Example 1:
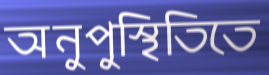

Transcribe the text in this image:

অনুপুস্থিতিতে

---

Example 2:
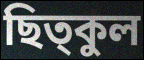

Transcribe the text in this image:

ছিত্কুল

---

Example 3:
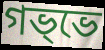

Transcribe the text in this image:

গভ্ভে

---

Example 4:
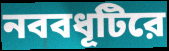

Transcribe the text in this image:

নববধূটিরে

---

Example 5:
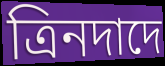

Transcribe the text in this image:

ত্রিনদাদে